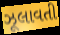
ઝૂલાવતી